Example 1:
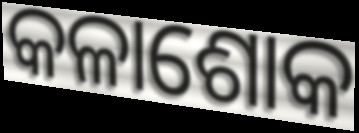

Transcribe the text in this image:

କଳାଶୋକ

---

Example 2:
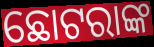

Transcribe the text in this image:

ଛୋଟରାଙ୍କ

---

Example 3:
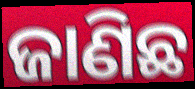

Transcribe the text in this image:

ଜାଣିଛ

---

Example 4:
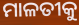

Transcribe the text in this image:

ମାଳତୀକୁ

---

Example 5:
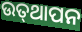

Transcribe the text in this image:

ଉତ୍‍ଥାପନ